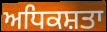
ਅਧਿਕਸ਼ਤਾ